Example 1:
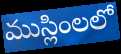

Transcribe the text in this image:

ముస్లింలలో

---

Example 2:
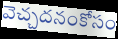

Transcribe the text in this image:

వెచ్చదనంకోసం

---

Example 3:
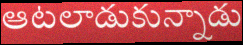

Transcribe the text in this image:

ఆటలాడుకున్నాడు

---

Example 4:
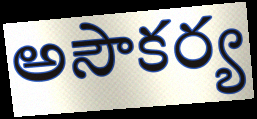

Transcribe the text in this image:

అసౌకర్య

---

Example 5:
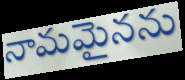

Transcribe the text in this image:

నామమైనను